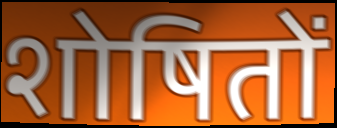
शोषितों